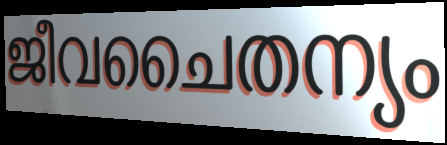
ജീവചൈതന്യം